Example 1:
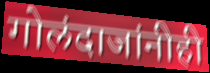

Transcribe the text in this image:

गोलंदाजांनीही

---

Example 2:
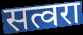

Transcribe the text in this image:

सत्वरा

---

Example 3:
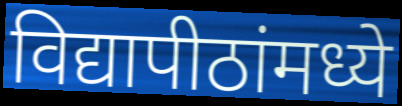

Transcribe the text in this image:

विद्यापीठांमध्ये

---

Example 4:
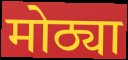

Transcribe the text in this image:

मोठ्या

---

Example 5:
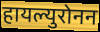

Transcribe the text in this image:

हायल्युरोनन